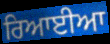
ਰਿਆਈਆ